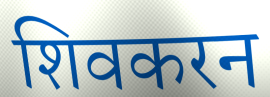
शिवकरन